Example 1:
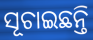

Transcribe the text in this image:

ସୂଚାଇଛନ୍ତି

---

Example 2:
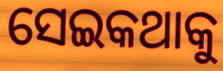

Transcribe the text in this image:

ସେଇକଥାକୁ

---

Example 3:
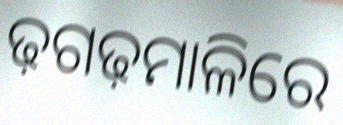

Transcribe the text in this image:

ଢ଼ଗଢ଼ମାଳିରେ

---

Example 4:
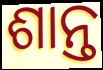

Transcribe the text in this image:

ଶାନ୍ତ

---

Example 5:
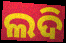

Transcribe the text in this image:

ଲଦି